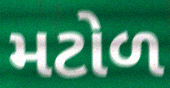
મટોળ